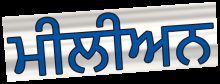
ਮੀਲੀਅਨ